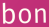
bon